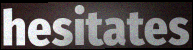
hesitates